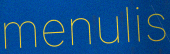
menulis